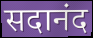
सदानंद